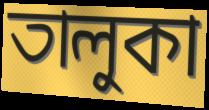
তালুকা